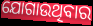
ଯୋଗାଉଥିବାର